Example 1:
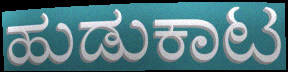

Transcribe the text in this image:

ಹುಡುಕಾಟ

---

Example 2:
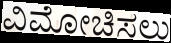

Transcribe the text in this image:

ವಿಮೋಚಿಸಲು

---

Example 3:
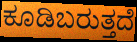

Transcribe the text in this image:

ಕೂಡಿಬರುತ್ತದೆ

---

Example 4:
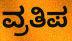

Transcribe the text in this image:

ವ್ರತಿಪ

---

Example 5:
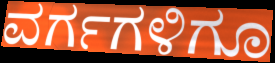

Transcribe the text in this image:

ವರ್ಗಗಳಿಗೂ